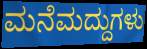
ಮನೆಮದ್ದುಗಳು